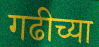
गढीच्या